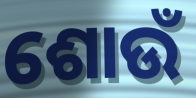
ଶୋଉଁ